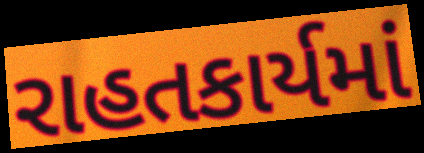
રાહતકાર્યમાં